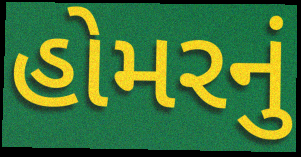
હોમરનું